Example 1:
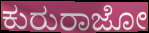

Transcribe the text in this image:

ಕುರುರಾಜೋ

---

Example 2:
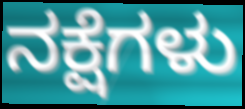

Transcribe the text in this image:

ನಕ್ಷೆಗಳು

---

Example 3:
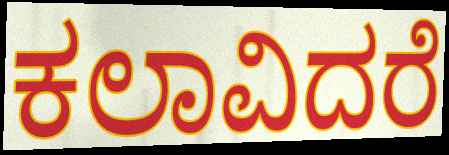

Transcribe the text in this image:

ಕಲಾವಿದರೆ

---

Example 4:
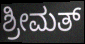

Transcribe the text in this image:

ಶ್ರೀಮತ್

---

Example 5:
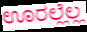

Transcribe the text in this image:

ಊರಲ್ಲೆಲ್ಲ